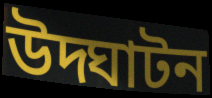
উদ্ঘাটন